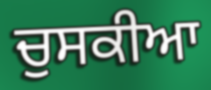
ਚੁਸਕੀਆ